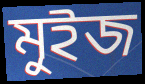
মুইজ